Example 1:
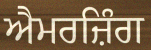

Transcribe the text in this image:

ਐਮਰਜ਼ਿੰਗ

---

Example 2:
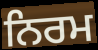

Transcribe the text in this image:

ਨਿਰਮ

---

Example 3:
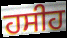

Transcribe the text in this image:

ਹਸੀਹ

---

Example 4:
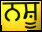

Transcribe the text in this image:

ਨਸ਼ੂ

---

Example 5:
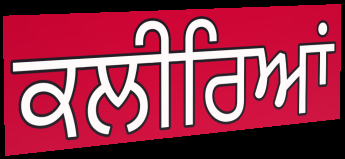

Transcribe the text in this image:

ਕਲੀਰਿਆਂ